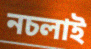
নচলাই